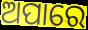
ଅପାରେ